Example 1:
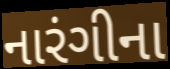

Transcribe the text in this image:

નારંગીના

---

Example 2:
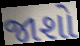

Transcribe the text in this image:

જાશો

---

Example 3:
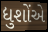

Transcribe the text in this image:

દ્યુશોંએ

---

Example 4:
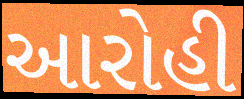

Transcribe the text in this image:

આરોહી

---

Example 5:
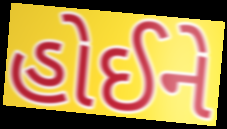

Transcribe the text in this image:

હોઈને